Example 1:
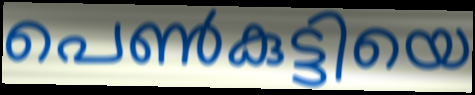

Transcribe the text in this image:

പെൺകുട്ടിയെ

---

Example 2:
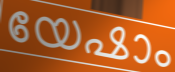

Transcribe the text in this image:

യേഷാം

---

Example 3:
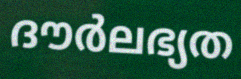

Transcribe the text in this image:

ദൗർലഭ്യത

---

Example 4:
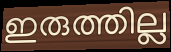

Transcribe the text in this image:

ഇരുത്തില്ല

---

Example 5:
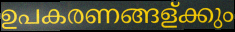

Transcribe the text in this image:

ഉപകരണങ്ങള്ക്കും